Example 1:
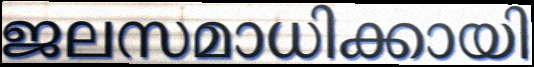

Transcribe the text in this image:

ജലസമാധിക്കായി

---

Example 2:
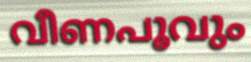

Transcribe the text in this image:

വീണപൂവും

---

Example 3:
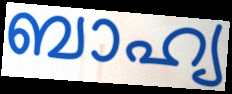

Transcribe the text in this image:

ബാഹ്യ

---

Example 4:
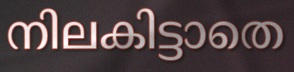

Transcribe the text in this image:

നിലകിട്ടാതെ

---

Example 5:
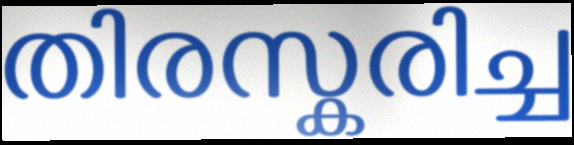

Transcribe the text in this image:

തിരസ്കരിച്ച